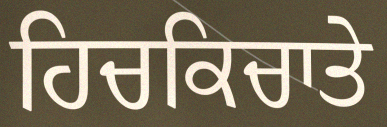
ਹਿਚਕਿਚਾਤੇ